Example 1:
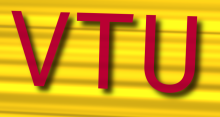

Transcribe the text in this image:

VTU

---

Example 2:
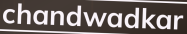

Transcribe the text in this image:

chandwadkar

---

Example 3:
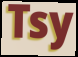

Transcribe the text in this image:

Tsy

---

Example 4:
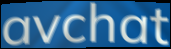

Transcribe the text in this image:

avchat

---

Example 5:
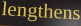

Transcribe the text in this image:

lengthens